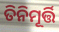
ତିନିମୂର୍ତ୍ତି